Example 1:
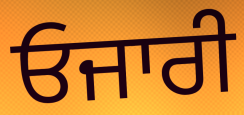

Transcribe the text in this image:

ਓਜਾਰੀ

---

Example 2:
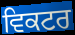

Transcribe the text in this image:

ਵਿਕਟਰ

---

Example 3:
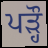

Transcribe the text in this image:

ਪੜ੍ਹੌ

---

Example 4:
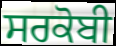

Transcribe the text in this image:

ਸਰਕੋਬੀ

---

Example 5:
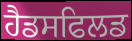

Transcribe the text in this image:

ਹੈਡਸਫਿਲਡ